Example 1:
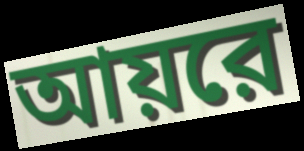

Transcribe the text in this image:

আয়রে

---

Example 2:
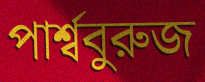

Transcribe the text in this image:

পার্শ্ববুরুজ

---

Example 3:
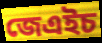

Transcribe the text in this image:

জেএইচ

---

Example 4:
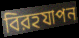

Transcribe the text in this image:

বিরহযাপন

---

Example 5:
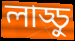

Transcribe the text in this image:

লাড্ডু